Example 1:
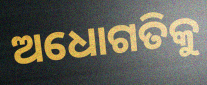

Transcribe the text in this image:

ଅଧୋଗତିକୁ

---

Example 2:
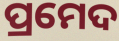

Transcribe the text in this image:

ପ୍ରମେଦ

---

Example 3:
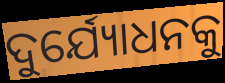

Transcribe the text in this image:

ଦୁର୍ଯ୍ୟୋଧନକୁ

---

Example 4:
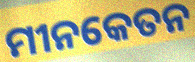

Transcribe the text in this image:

ମୀନକେତନ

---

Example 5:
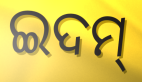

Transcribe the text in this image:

ଇଦମ୍